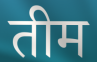
तीम